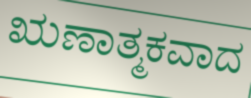
ಋಣಾತ್ಮಕವಾದ